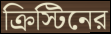
ক্রিস্টিনের